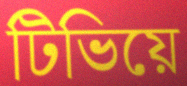
টিভিয়ে